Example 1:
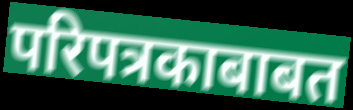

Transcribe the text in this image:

परिपत्रकाबाबत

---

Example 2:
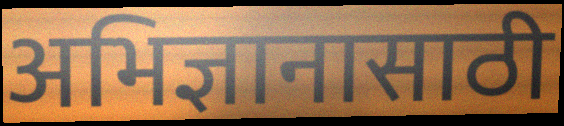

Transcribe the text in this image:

अभिज्ञानासाठी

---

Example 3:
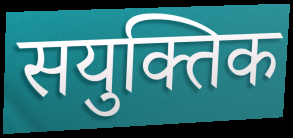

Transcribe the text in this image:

सयुक्तिक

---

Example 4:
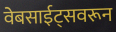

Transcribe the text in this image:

वेबसाईट्सवरून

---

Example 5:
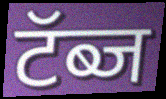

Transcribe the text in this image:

टॅब्ज